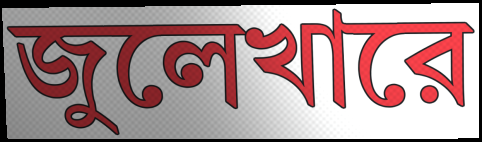
জুলেখারে